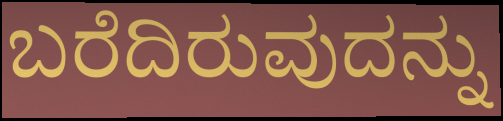
ಬರೆದಿರುವುದನ್ನು